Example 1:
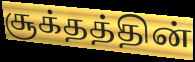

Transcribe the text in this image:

சூக்தத்தின்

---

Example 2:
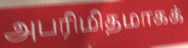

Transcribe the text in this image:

அபரிமிதமாகக்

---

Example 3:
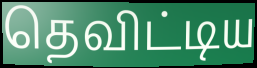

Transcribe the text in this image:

தெவிட்டிய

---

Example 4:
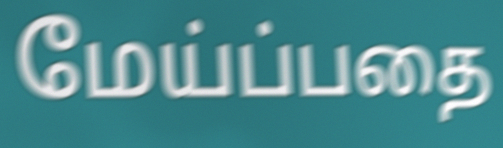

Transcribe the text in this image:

மேய்ப்பதை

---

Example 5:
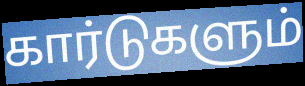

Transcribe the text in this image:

கார்டுகளும்